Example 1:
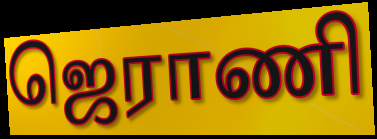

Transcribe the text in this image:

ஜெராணி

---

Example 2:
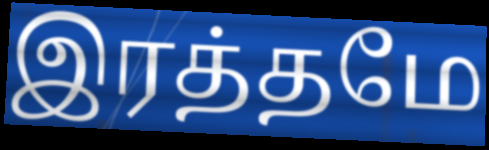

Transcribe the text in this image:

இரத்தமே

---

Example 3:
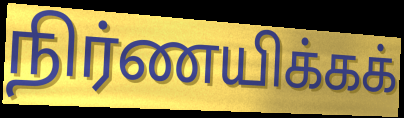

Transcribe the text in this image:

நிர்ணயிக்கக்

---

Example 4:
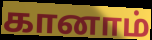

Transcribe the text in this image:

கானாம்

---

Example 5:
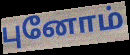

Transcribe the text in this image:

புனோம்